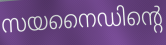
സയനൈഡിന്റെ